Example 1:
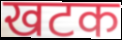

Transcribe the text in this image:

खटक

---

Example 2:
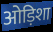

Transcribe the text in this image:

ओड़िशा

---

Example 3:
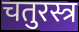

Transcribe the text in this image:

चतुरस्त्र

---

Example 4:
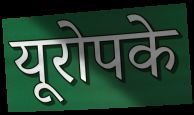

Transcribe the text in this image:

यूरोपके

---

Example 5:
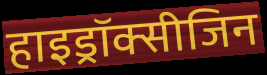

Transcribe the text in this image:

हाइड्रॉक्सीजिन